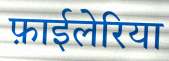
फ़ाईलेरिया